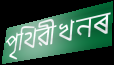
পৃথিৱীখনৰ